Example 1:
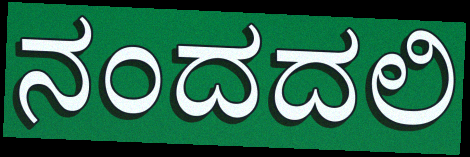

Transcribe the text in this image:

ನಂದದಲಿ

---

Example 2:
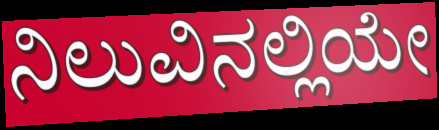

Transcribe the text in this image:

ನಿಲುವಿನಲ್ಲಿಯೇ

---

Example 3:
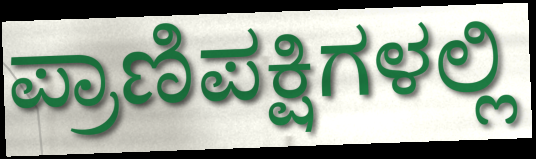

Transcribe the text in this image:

ಪ್ರಾಣಿಪಕ್ಷಿಗಳಲ್ಲಿ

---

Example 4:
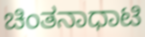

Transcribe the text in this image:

ಚಿಂತನಾಧಾಟಿ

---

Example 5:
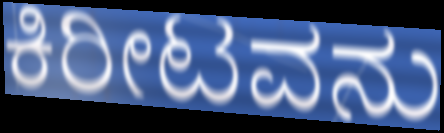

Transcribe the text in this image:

ಕಿರೀಟವನು